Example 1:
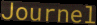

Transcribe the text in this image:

Journel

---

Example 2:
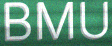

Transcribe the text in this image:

BMU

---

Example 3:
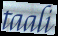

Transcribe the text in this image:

taali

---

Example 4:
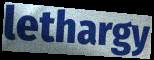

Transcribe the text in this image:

lethargy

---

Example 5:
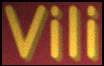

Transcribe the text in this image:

Vili